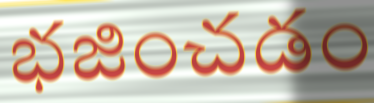
భజించడం